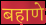
बहाणे